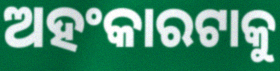
ଅହଂକାରଟାକୁ